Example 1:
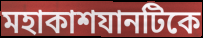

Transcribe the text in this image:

মহাকাশযানটিকে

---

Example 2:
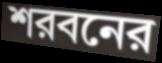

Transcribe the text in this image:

শরবনের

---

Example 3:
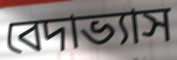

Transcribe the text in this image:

বেদাভ্যাস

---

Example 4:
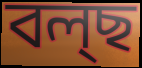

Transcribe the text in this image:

বল্‌ছ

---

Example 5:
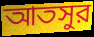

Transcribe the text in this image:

আতসুর